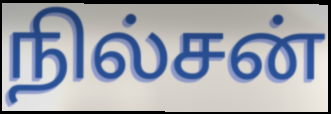
நில்சன்